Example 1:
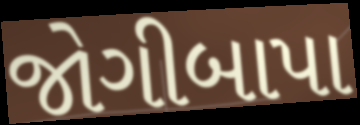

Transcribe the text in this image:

જોગીબાપા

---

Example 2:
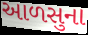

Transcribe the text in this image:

આળસુના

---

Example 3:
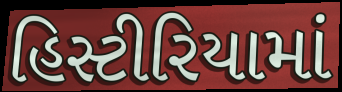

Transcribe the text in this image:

હિસ્ટીરિયામાં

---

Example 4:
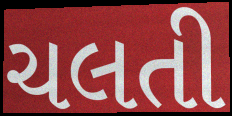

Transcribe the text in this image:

ચલતી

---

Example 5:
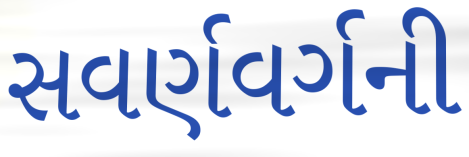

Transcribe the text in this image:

સવર્ણવર્ગની